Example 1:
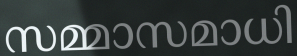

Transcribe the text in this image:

സമ്മാസമാധി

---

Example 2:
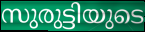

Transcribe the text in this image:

സുരുട്ടിയുടെ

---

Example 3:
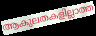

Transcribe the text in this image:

ആകുലതകളില്ലാത്ത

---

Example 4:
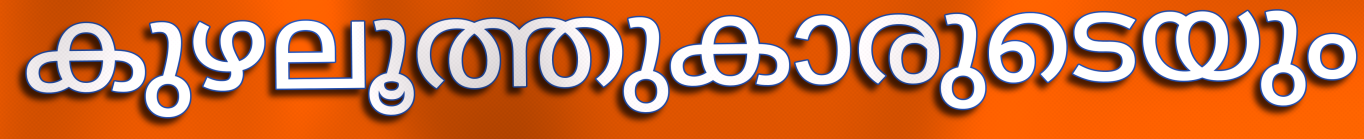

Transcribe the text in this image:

കുഴലൂത്തുകാരുടെയും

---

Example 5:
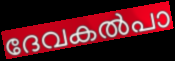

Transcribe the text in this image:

ദേവകൽപാ